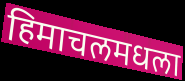
हिमाचलमधला